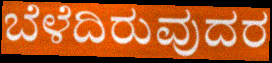
ಬೆಳೆದಿರುವುದರ